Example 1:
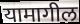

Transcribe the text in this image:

यामागील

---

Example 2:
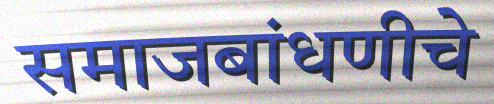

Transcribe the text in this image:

समाजबांधणीचे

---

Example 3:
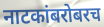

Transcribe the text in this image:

नाटकांबरोबरच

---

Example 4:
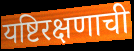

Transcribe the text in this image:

यष्टिरक्षणाची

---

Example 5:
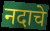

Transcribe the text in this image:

नदाचे